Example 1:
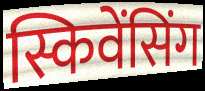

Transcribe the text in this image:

स्किवेंसिंग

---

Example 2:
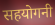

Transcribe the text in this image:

सहयोगनी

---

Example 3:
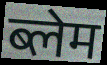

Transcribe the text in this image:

ब्लेम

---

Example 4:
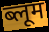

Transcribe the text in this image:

ब्लूम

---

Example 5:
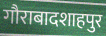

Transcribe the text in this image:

गौराबादशाहपुर